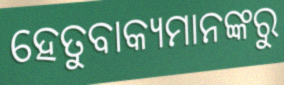
ହେତୁବାକ୍ୟମାନଙ୍କରୁ